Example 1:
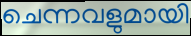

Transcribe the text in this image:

ചെന്നവളുമായി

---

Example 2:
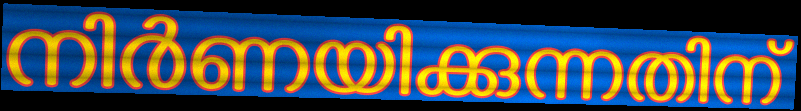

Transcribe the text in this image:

നിർണയിക്കുന്നതിന്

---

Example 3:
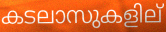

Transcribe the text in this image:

കടലാസുകളില്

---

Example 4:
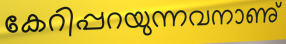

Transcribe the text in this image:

കേറിപ്പറയുന്നവനാണു്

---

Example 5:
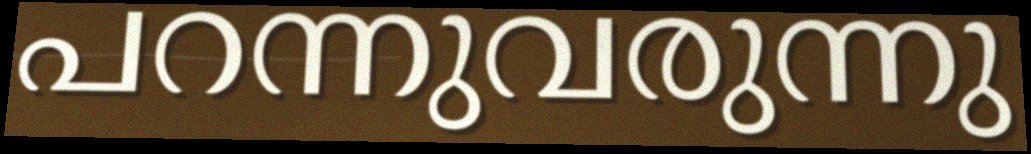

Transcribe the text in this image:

പറന്നുവരുന്നു